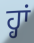
ਹ੍ਹਾਂ